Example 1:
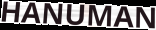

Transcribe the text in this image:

HANUMAN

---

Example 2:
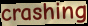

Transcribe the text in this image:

crashing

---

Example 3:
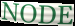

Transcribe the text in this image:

NODE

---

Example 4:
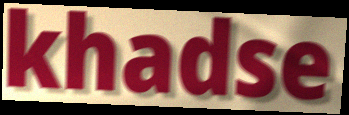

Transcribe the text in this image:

khadse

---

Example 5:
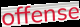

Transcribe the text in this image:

offense